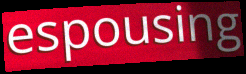
espousing